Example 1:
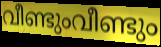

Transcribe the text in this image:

വീണ്ടുംവീണ്ടും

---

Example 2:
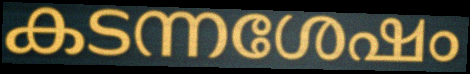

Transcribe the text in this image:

കടന്നശേഷം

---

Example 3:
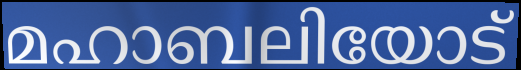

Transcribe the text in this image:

മഹാബലിയോട്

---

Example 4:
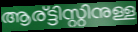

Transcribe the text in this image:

ആര്ട്ടിസ്റ്റിനുള്ള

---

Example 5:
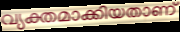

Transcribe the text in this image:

വ്യക്തമാക്കിയതാണ്